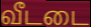
வீடடை